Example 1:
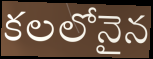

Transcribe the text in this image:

కలలోనైన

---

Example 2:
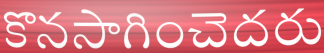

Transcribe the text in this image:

కొనసాగించెదరు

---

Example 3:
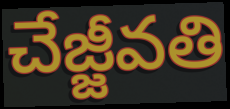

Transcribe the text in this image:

చేజ్జీవతి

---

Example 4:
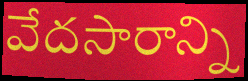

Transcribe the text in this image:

వేదసారాన్ని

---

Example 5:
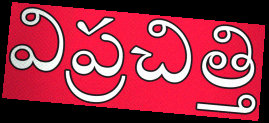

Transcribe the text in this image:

విప్రచిత్తి